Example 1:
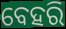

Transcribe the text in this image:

ବେହରି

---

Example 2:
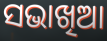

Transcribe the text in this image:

ସଭାଖିଆ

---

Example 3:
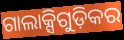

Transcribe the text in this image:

ଗାଲାକ୍ସିଗୁଡ଼ିକର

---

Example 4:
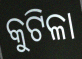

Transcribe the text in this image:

କୁଟିଳା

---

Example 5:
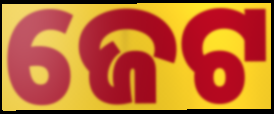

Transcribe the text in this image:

ଜେଟ